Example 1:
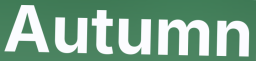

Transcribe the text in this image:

Autumn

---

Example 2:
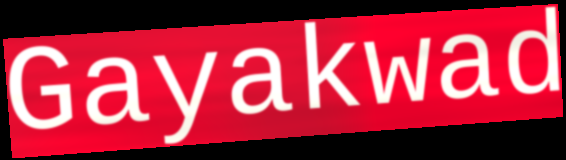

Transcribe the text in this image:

Gayakwad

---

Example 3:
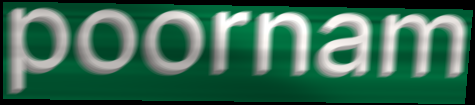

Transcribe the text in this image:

poornam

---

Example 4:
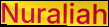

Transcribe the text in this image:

Nuraliah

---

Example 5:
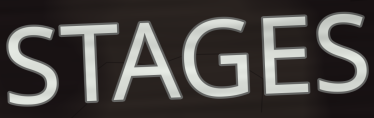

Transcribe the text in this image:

STAGES